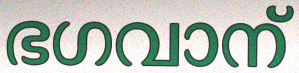
ഭഗവാന്